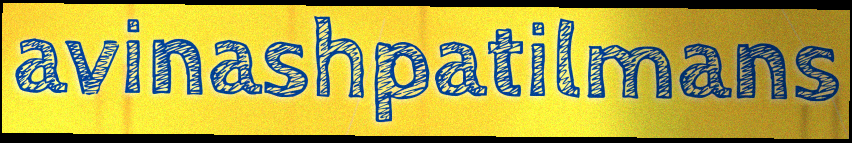
avinashpatilmans